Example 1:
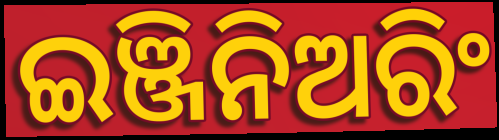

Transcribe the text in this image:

ଇଞ୍ଜିନିଅରିଂ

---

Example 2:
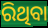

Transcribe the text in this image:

ରିଥିବା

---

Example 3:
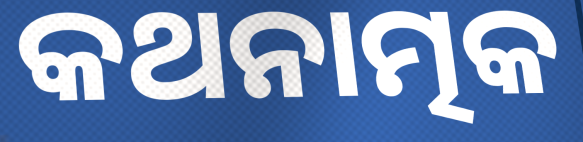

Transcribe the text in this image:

କଥନାତ୍ମକ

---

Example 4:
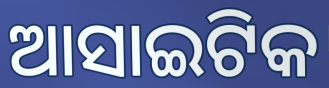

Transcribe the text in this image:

ଆସାଇଟିକ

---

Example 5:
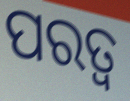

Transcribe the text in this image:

ପରତ୍ୱ